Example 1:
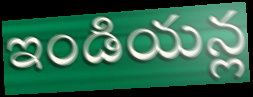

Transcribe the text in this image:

ఇండియన్ల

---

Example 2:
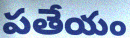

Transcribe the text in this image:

పతేయం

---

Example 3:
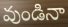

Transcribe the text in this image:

వుండినా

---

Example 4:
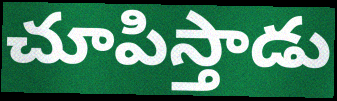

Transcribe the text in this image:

చూపిస్తాడు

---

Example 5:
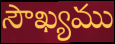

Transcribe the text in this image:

సౌఖ్యము